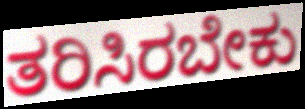
ತರಿಸಿರಬೇಕು